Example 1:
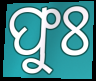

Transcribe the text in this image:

ଫୁଃ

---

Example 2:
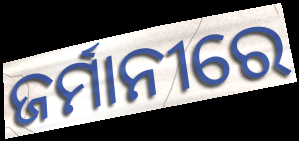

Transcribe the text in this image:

ଜର୍ମାନୀରେ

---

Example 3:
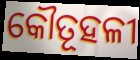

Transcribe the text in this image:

କୌତୂହଳୀ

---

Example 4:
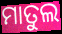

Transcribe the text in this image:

ମାତୁଲ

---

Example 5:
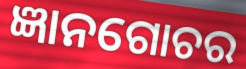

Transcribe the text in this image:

ଜ୍ଞାନଗୋଚର